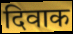
दिवाक